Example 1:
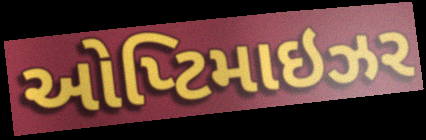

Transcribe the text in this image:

ઓપ્ટિમાઇઝર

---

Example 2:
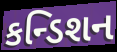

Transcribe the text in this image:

કન્ડિશન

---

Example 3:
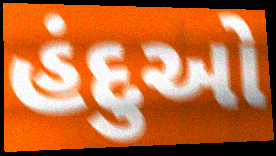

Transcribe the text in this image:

હંદુઓ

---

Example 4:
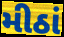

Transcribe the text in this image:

મીઠાં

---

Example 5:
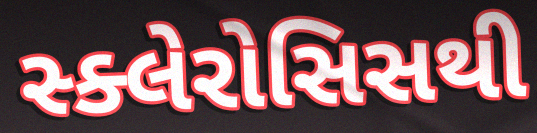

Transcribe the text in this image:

સ્ક્લેરોસિસથી